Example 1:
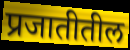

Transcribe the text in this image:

प्रजातीतील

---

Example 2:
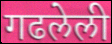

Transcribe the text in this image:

गढलेली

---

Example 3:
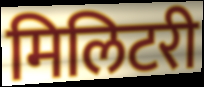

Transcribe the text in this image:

मिलिटरी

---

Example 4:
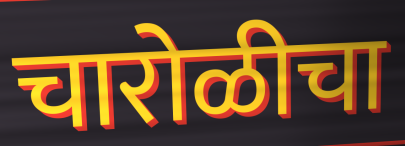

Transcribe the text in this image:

चारोळीचा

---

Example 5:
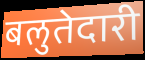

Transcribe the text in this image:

बलुतेदारी